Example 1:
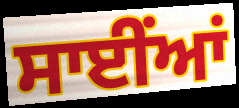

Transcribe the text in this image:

ਸਾਈਂਆਂ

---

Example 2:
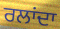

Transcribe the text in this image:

ਰਲਾਂਦਾ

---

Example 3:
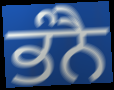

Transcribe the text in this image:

ਭੰਨੈ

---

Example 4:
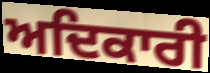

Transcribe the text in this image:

ਅਦਿਕਾਰੀ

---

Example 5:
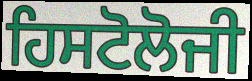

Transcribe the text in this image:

ਹਿਸਟੋਲੋਜੀ